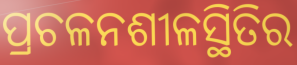
ପ୍ରଚଳନଶୀଳସ୍ଥିତିର